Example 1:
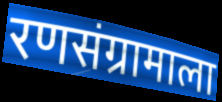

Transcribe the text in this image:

रणसंग्रामाला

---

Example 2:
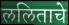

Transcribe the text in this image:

ललिताचे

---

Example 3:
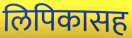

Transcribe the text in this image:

लिपिकासह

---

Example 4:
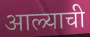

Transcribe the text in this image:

आल्याची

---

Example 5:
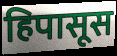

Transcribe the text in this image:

हिपासूस